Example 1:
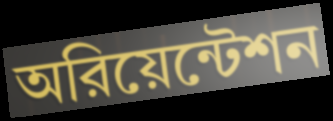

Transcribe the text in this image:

অরিয়েন্টেশন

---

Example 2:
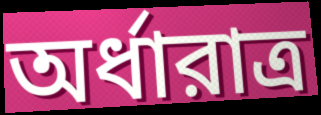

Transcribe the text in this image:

অর্ধারাত্র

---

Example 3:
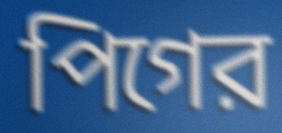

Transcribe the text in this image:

পিগের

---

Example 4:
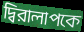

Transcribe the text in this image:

দ্বিরালাপকে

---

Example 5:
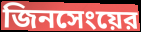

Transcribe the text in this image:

জিনসেংয়ের